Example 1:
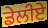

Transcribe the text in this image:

ਡੇਲੀਏ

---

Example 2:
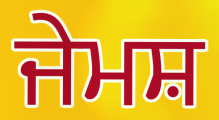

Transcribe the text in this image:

ਜੇਮਸ਼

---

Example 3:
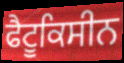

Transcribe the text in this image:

ਫੈਟੂਕਿਸੀਨ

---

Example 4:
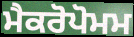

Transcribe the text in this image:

ਮੈਕਰੋਪੋਮਮ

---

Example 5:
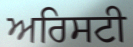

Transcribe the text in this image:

ਅਰਿਸਟੀ